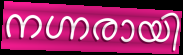
നഗ്നരായി